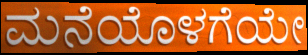
ಮನೆಯೊಳಗೆಯೇ